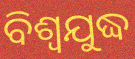
ବିଶ୍ୱଯୁଦ୍ଧ